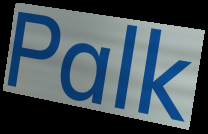
Palk